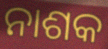
ନାଶକ